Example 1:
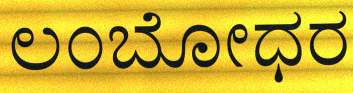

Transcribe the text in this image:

ಲಂಬೋಧರ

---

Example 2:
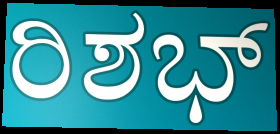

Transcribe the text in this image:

ರಿಶಭ್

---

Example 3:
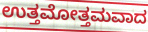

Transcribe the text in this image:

ಉತ್ತಮೋತ್ತಮವಾದ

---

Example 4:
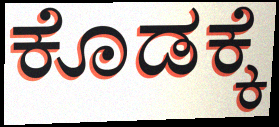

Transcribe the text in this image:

ಕೊಡಕ್ಕೆ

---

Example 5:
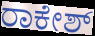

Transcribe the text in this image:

ರಾಕೇಶ್